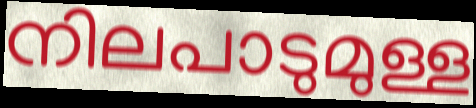
നിലപാടുമുള്ള